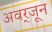
अवर्जून